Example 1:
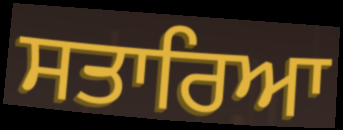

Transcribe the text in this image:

ਸਤਾਰਿਆ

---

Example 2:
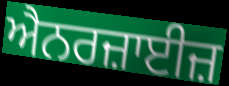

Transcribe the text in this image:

ਐਨਰਜ਼ਾਈਜ਼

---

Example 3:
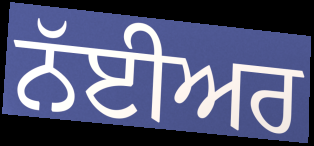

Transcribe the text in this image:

ਨੱਈਅਰ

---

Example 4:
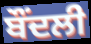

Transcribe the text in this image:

ਬੌਂਦਲੀ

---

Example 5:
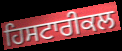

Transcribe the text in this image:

ਹਿਸਟਾਰੀਕਲ